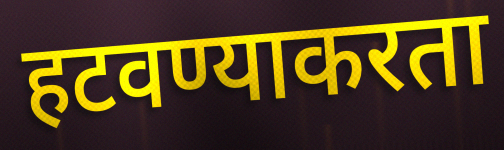
हटवण्याकरता